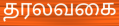
தரலவகை